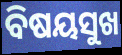
ବିଷୟସୁଖ